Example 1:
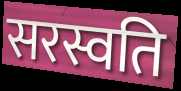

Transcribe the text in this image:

सरस्वति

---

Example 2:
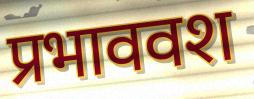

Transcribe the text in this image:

प्रभाववश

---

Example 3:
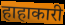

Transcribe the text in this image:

हाहाकारी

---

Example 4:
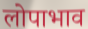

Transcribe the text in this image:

लोपाभाव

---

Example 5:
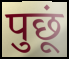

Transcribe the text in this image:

पुछूं